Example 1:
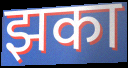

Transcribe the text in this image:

झका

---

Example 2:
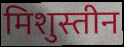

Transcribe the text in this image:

मिशुस्तीन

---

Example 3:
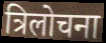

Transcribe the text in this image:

त्रिलोचना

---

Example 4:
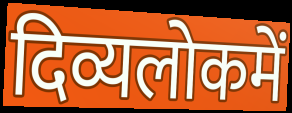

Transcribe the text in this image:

दिव्यलोकमें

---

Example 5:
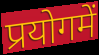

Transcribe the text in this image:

प्रयोगमें